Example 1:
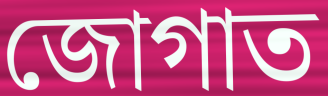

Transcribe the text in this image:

জোগাত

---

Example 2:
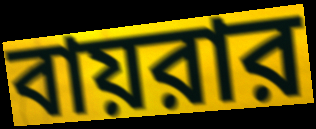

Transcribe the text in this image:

বায়রার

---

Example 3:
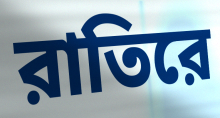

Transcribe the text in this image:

রাতিরে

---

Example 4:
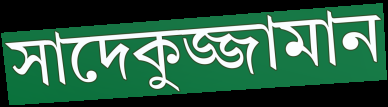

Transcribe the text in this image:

সাদেকুজ্জামান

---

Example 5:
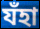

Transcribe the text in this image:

যঁহা